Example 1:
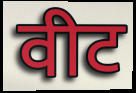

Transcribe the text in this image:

वीट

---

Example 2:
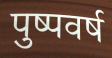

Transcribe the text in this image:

पुष्पवर्ष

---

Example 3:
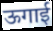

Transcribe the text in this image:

ऊगाई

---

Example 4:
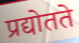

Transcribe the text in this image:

प्रद्योतते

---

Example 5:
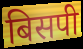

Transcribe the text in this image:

बिसपी